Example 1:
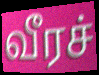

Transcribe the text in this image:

வீரச்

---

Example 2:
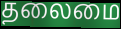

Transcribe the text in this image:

தலைமை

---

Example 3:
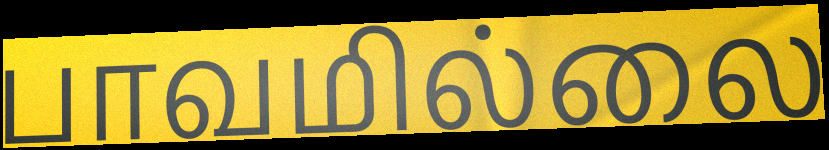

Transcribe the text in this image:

பாவமில்லை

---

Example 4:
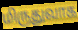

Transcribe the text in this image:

மிருதுவாக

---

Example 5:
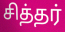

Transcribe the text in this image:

சித்தர்